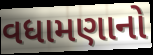
વધામણાનો